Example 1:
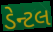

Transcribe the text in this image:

ડેન્ટલ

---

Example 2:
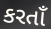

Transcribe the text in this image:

કરતાઁ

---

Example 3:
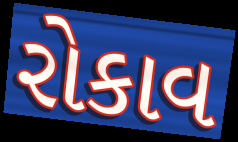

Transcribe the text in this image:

રોકાવ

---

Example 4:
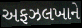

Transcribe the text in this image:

અફઝલખાને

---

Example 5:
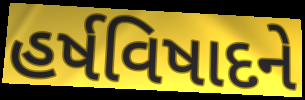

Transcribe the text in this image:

હર્ષવિષાદને